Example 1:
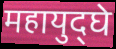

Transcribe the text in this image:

महायुद्घे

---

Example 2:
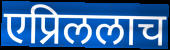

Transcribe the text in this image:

एप्रिललाच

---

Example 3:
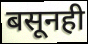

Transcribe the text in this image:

बसूनही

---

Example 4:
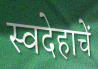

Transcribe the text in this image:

स्वदेहाचें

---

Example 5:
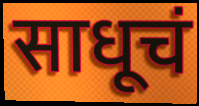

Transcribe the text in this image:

साधूचं